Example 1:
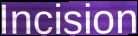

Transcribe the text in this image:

Incision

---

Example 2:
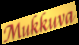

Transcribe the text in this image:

Mukkuva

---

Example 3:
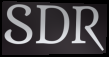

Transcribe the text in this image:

SDR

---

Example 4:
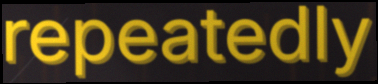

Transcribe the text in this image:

repeatedly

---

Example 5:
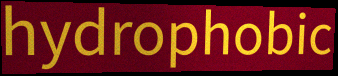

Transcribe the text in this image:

hydrophobic